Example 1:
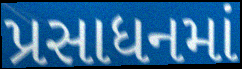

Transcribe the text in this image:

પ્રસાધનમાં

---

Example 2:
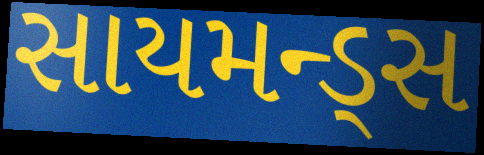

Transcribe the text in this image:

સાયમન્ડ્સ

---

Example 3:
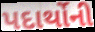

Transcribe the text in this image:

પદાર્થોની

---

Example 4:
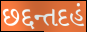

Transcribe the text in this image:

છદ્દન્તદહં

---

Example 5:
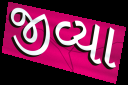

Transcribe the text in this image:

જીવ્યા